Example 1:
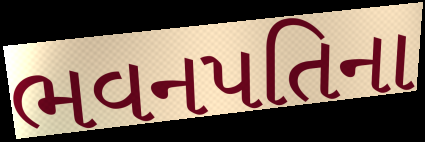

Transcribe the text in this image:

ભવનપતિના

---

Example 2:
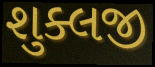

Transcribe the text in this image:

શુક્લજી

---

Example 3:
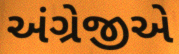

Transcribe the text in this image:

અંગ્રેજીએ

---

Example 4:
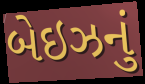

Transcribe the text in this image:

બેઇઝનું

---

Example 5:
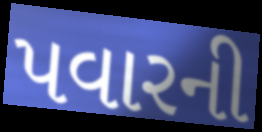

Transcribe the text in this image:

પવારની